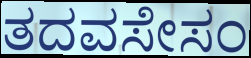
ತದವಸೇಸಂ